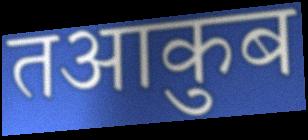
तआकुब